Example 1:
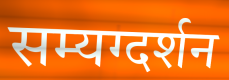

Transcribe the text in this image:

सम्‍यग्‍दर्शन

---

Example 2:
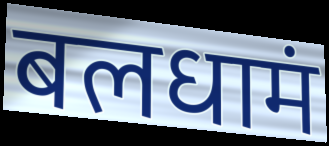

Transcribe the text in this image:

बलधामं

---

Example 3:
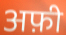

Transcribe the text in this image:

अफ़ी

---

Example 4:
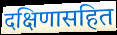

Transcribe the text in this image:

दक्षिणासहित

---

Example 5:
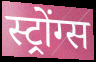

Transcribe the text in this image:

स्ट्रोंग्स